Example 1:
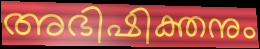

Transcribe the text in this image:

അഭിഷിക്തനും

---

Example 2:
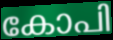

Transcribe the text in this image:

കോപി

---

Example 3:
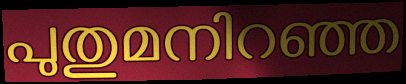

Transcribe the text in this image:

പുതുമനിറഞ്ഞ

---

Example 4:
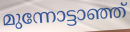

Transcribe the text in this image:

മുന്നോട്ടാഞ്ഞ്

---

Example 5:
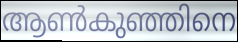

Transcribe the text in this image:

ആൺകുഞ്ഞിനെ